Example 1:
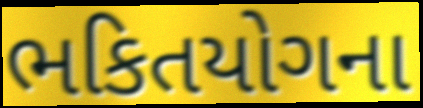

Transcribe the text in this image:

ભકિતયોગના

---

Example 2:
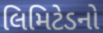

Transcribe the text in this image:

લિમિટેડનો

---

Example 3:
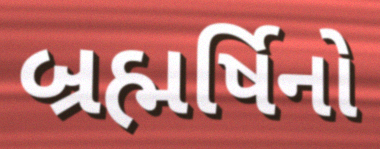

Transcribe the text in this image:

બ્રહ્મર્ષિનો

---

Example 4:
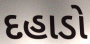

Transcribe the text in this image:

દહાડો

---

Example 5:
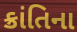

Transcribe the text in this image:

ક્રાંતિના